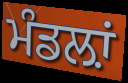
ਮੰਡਲ਼ਾਂ